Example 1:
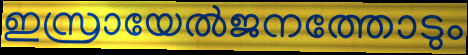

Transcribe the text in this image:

ഇസ്രായേൽജനത്തോടും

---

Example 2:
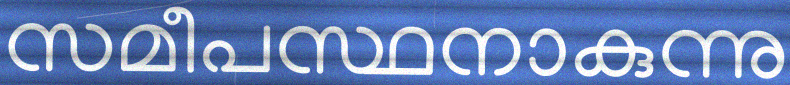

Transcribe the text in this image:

സമീപസ്ഥനാകുന്നു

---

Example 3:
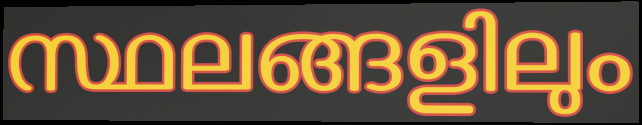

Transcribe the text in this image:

സ്ഥലങ്ങളിലും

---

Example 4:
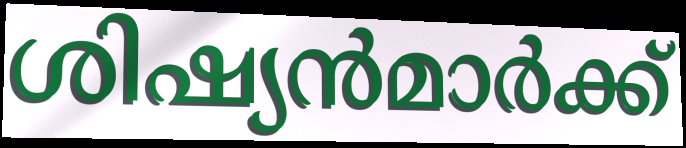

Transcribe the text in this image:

ശിഷ്യൻമാർക്ക്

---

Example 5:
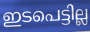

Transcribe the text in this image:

ഇടപെട്ടില്ല